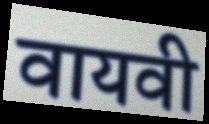
वायवी